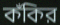
কঁকির